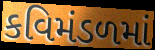
કવિમંડળમાં